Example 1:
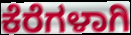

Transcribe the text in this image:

ಕೆರೆಗಳಾಗಿ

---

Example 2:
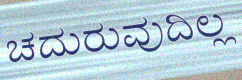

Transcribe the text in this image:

ಚದುರುವುದಿಲ್ಲ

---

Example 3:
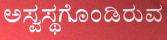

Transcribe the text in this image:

ಅಸ್ವಸ್ಥಗೊಂಡಿರುವ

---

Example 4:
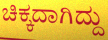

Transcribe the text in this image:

ಚಿಕ್ಕದಾಗಿದ್ದು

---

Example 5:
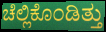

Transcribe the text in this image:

ಚೆಲ್ಲಿಕೊಂಡಿತ್ತು